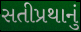
સતીપ્રથાનું